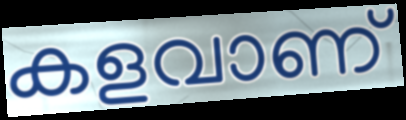
കളവാണ്